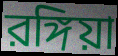
রঙ্গিয়া